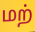
மற்